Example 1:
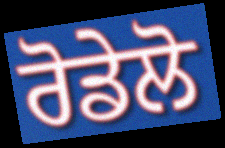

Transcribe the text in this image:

ਰੋਡੇਲੋ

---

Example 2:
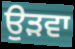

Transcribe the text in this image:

ਉੜਵਾ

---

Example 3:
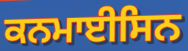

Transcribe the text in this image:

ਕਨਮਾਈਸਿਨ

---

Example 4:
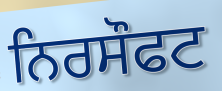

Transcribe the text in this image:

ਨਿਰਸੌਫਟ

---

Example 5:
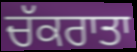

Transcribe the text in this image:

ਚੱਕਰਾਤਾ